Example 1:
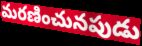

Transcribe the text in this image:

మరణించునపుడు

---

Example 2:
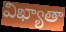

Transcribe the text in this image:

విఖ్యాతా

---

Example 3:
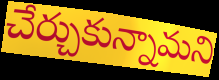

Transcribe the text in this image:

చేర్చుకున్నామని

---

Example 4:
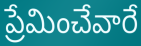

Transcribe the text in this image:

ప్రేమించేవారే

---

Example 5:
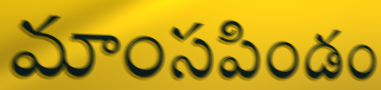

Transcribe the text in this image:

మాంసపిండం